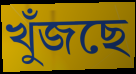
খুঁজছে